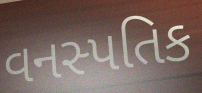
વનસ્પતિક